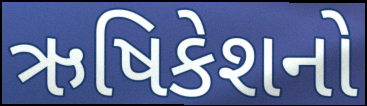
ઋષિકેશનો